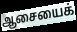
ஆசையைக்